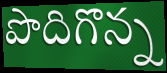
పొదిగొన్న